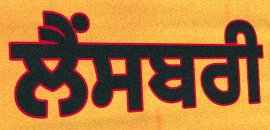
ਲੈਂਸਬਰੀ